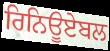
ਰਿਨਿਊਏਬਲ